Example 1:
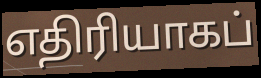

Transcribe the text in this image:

எதிரியாகப்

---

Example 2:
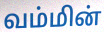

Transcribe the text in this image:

வம்மின்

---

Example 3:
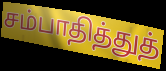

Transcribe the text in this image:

சம்பாதித்துத்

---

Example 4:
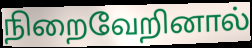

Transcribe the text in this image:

நிறைவேறினால்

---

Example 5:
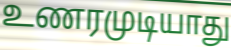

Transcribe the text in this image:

உணரமுடியாது